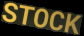
STOCK